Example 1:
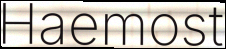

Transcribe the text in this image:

Haemost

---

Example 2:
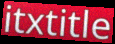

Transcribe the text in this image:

itxtitle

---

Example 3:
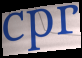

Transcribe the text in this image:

cpr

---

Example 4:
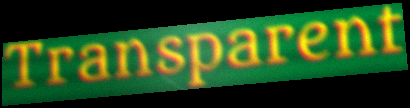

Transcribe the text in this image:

Transparent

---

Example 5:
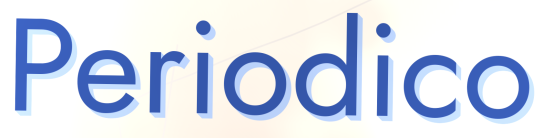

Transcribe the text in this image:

Periodico